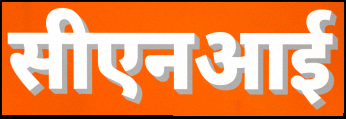
सीएनआई